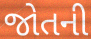
જોતની